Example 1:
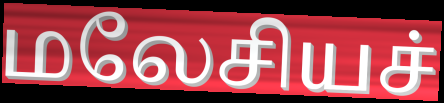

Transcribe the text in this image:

மலேசியச்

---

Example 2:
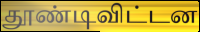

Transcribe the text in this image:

தூண்டிவிட்டன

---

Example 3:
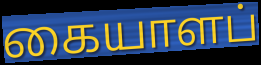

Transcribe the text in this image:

கையாளப்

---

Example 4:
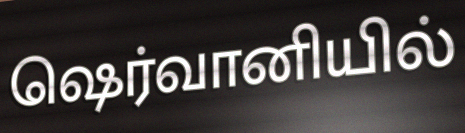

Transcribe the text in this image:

ஷெர்வானியில்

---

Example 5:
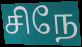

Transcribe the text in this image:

சிநே